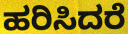
ಹರಿಸಿದರೆ